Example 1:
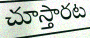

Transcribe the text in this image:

చూస్తారట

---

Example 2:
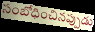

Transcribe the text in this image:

సంబోధించినప్పుడు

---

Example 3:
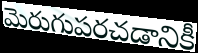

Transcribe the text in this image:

మెరుగుపరచడానికీ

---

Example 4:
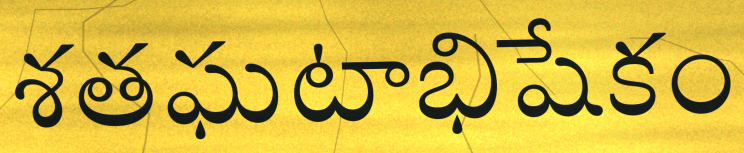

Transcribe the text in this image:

శతఘటాభిషేకం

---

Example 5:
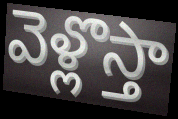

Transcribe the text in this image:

వెళ్లొస్తా